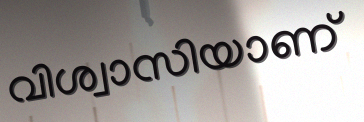
വിശ്വാസിയാണ്